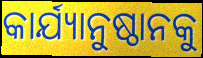
କାର୍ଯ୍ୟାନୁଷ୍ଠାନକୁ